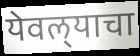
येवल्याचा